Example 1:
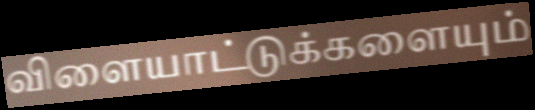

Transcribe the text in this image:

விளையாட்டுக்களையும்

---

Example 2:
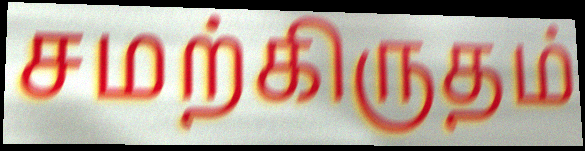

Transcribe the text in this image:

சமற்கிருதம்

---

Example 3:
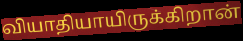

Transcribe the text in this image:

வியாதியாயிருக்கிறான்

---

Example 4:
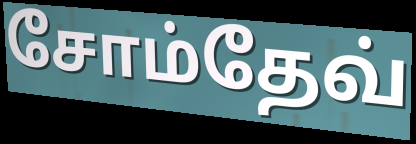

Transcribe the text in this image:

சோம்தேவ்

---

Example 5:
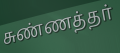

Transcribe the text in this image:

சுண்ணத்தர்